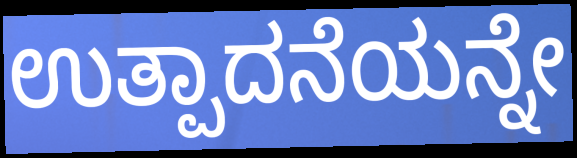
ಉತ್ಪಾದನೆಯನ್ನೇ